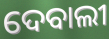
ଦେବାଲୀ